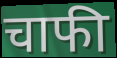
चाफी